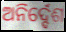
ଅନିର୍ଦ୍ଦେଶ